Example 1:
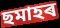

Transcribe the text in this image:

ছমাহৰ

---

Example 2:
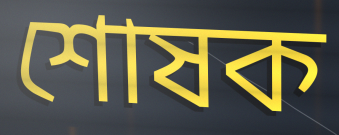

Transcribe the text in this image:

শোষক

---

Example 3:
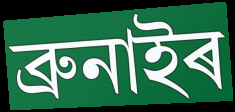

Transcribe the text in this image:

ব্ৰুনাইৰ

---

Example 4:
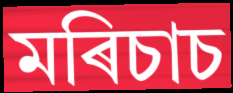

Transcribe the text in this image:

মৰিচাচ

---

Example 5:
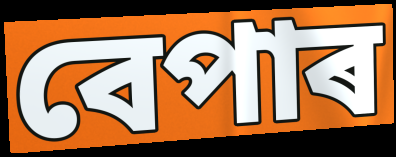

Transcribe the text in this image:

বেপাৰ